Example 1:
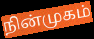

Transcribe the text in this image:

நின்முகம்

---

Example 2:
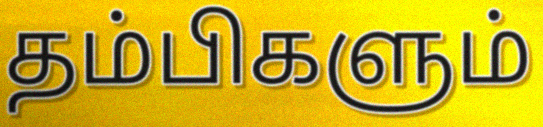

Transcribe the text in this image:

தம்பிகளும்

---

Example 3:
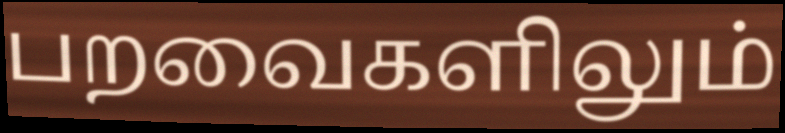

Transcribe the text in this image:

பறவைகளிலும்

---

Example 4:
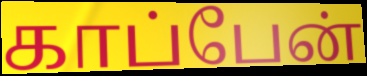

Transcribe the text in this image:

காப்பேன்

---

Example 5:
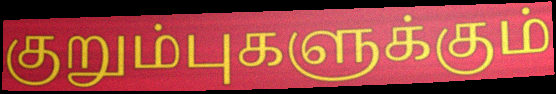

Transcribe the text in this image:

குறும்புகளுக்கும்